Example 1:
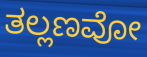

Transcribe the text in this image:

ತಲ್ಲಣವೋ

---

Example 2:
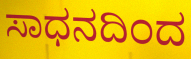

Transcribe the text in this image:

ಸಾಧನದಿಂದ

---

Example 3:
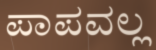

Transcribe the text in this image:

ಪಾಪವಲ್ಲ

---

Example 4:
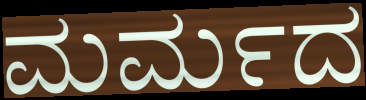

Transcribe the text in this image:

ಮರ್ಮದ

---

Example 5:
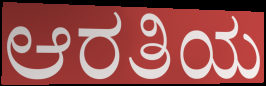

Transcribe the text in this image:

ಆರತಿಯ